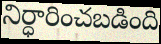
నిర్ధారించబడింది